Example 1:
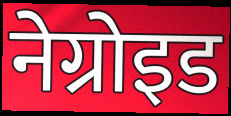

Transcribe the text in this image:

नेग्रोइड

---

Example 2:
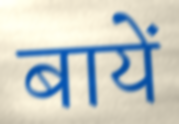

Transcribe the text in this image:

बायें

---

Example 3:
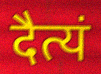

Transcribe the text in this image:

दैत्यं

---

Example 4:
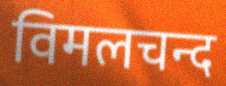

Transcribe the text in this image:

विमलचन्द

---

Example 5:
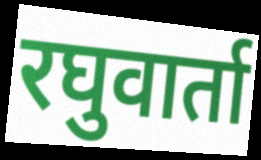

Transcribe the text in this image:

रघुवार्ता